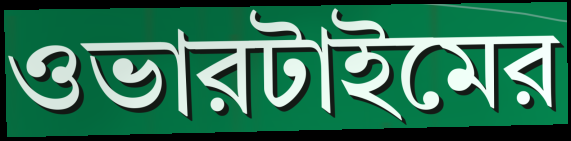
ওভারটাইমের